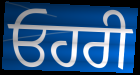
ਓਹਰੀ